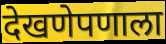
देखणेपणाला